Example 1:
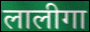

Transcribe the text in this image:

लालीगा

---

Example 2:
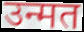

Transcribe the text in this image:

उन्मत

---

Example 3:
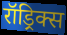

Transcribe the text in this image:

रॉड्रिक्स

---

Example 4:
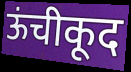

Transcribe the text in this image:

ऊंचीकूद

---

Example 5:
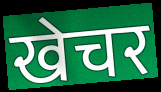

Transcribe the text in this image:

खेचर